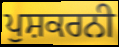
ਪੁਸ਼ਕਰਨੀ